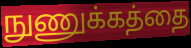
நுணுக்கத்தை